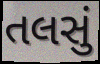
તલસું